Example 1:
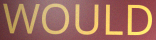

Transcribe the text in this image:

WOULD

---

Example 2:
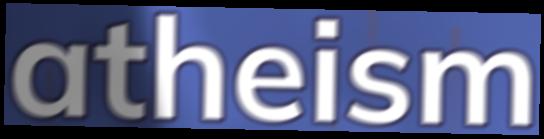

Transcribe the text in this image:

atheism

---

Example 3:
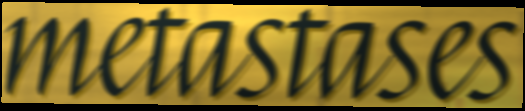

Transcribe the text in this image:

metastases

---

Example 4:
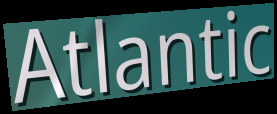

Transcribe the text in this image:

Atlantic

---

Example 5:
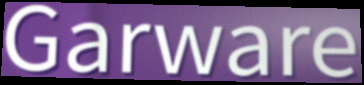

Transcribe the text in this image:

Garware